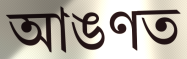
আঙণত